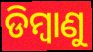
ଡିମ୍ବାଣୁ